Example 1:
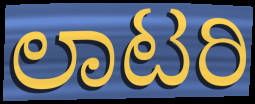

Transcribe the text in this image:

ಲಾಟರಿ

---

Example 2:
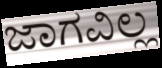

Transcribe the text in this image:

ಜಾಗವಿಲ್ಲ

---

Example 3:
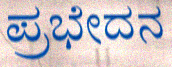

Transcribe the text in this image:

ಪ್ರಭೇದನ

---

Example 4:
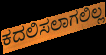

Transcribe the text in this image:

ಕದಲಿಸಲಾಗಲಿಲ್ಲ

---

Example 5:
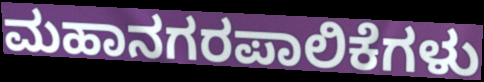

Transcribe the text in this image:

ಮಹಾನಗರಪಾಲಿಕೆಗಳು